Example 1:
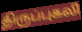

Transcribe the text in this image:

திருப்புகலி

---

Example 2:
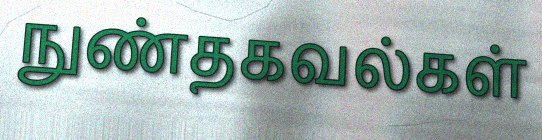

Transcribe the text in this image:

நுண்தகவல்கள்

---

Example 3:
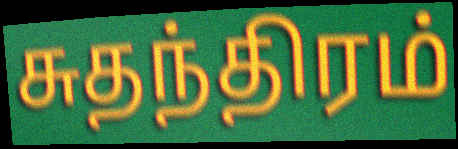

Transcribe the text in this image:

சுதந்திரம்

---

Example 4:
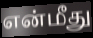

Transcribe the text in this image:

என்மீது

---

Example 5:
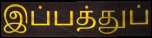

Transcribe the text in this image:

இப்பத்துப்